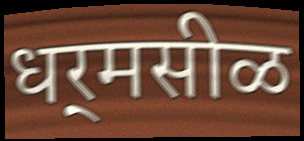
धर्मसीळ